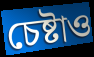
চেষ্টাও